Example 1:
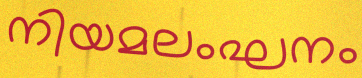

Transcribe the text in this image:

നിയമലംഘനം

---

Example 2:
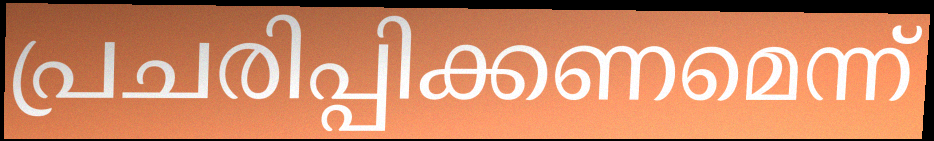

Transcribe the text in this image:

പ്രചരിപ്പിക്കണമെന്ന്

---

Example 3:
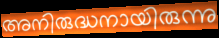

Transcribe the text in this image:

അനിരുദ്ധനായിരുന്നു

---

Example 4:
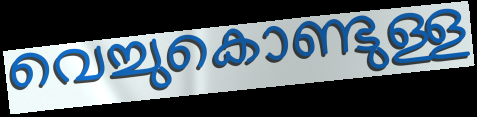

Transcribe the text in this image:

വെച്ചുകൊണ്ടുള്ള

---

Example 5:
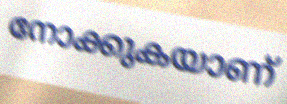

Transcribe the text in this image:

നോക്കുകയാണ്